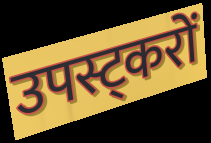
उपस्ट्करों